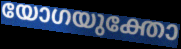
യോഗയുക്തോ